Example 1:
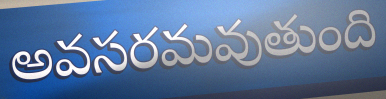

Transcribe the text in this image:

అవసరమవుతుంది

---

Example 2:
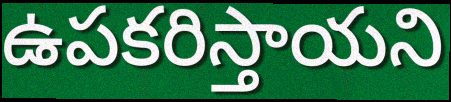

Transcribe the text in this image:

ఉపకరిస్తాయని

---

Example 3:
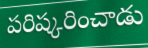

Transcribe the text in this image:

పరిష్కరించాడు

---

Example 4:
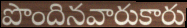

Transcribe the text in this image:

పొందినవారుకారు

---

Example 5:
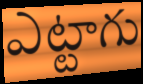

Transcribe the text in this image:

ఎట్టాగు